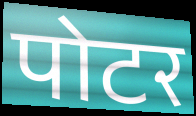
पोटर